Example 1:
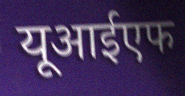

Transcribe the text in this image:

यूआईएफ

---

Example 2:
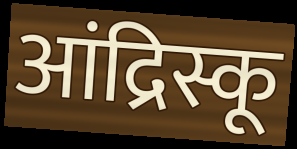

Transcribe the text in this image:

आंद्रिस्कू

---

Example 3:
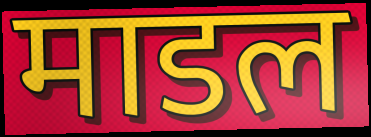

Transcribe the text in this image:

माडल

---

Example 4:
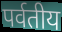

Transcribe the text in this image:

पर्वतीय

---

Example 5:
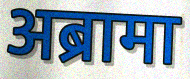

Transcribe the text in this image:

अब्रामा